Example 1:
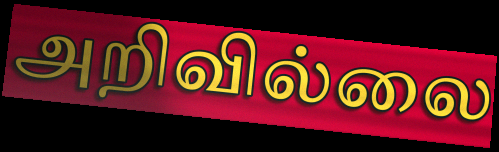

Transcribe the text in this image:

அறிவில்லை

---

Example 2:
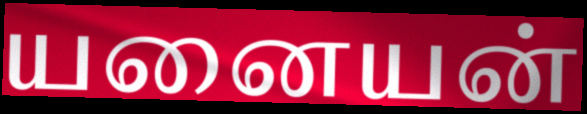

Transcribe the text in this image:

யனையன்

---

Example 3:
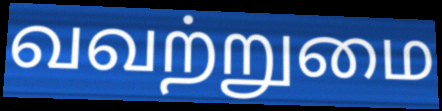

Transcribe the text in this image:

வவற்றுமை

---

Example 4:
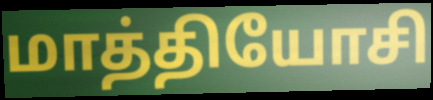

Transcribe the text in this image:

மாத்தியோசி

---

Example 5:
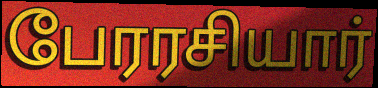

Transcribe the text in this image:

பேரரசியார்